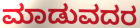
ಮಾಡುವದರ